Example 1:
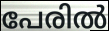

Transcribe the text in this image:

പേരിൽ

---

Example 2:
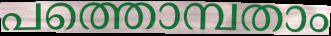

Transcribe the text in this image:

പത്തൊമ്പതാം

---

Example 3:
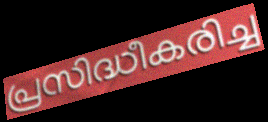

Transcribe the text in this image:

പ്രസിദ്ധീകരിച്ച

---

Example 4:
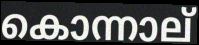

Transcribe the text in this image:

കൊന്നാല്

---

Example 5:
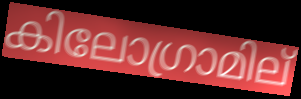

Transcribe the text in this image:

കിലോഗ്രാമില്